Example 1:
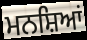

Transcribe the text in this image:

ਮਨਸ਼ਿਆਂ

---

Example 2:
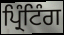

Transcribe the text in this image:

ਪ੍ਰਿੰਟਿੰਗ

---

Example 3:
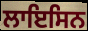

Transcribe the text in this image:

ਲਾਇਸਿਨ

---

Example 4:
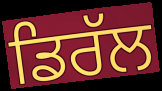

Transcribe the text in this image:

ਡਿਰੱਲ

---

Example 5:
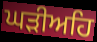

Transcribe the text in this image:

ਘੜੀਅਹਿ